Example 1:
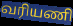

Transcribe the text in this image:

வரியணி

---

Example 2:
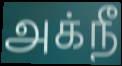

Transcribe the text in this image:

அக்நீ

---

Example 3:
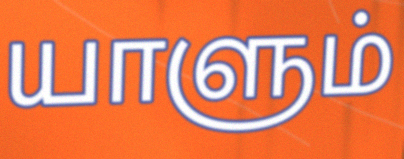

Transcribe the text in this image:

யாளும்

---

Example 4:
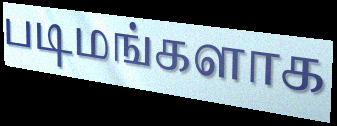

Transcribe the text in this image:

படிமங்களாக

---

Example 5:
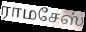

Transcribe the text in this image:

ராமசேஸ்